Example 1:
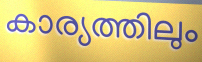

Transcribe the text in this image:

കാര്യത്തിലും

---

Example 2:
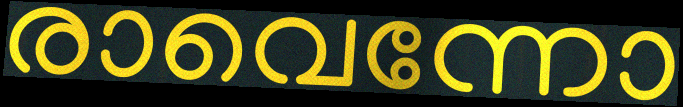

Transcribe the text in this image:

രാവെന്നോ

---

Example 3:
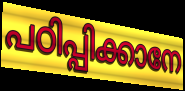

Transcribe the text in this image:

പഠിപ്പിക്കാനേ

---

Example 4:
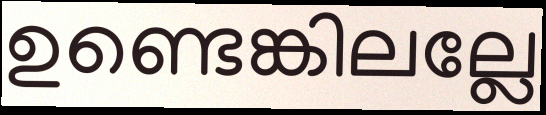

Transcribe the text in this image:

ഉണ്ടെങ്കിലല്ലേ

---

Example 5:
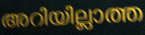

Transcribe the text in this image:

അറിയില്ലാത്ത